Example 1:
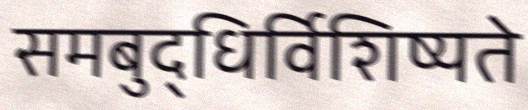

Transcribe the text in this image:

समबुद्धिर्विशिष्यते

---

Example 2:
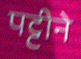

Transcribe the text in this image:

पट्टीने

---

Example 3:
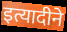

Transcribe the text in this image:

इत्यादीने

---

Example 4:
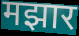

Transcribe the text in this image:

मझार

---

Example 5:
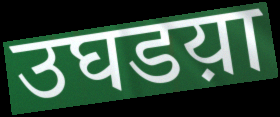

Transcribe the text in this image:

उघडय़ा